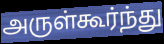
அருள்கூர்ந்து